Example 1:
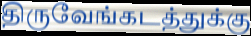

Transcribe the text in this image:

திருவேங்கடத்துக்கு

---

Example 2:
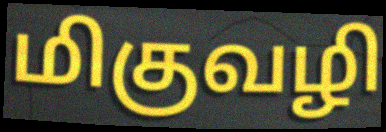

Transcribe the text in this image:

மிகுவழி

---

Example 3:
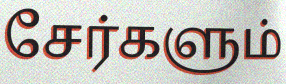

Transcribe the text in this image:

சேர்களும்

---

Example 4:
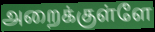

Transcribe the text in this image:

அறைக்குள்ளே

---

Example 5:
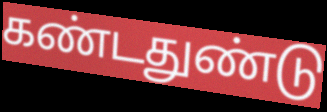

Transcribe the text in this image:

கண்டதுண்டு